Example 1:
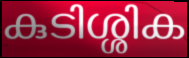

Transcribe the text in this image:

കുടിശ്ശിക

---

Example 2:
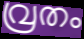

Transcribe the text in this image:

വ്രതം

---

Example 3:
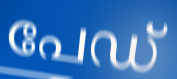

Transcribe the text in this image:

പേഡ്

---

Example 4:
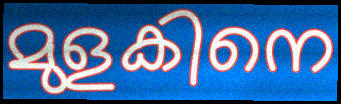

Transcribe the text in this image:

മുളകിനെ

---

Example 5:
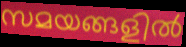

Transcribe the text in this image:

സമയങ്ങളിൽ